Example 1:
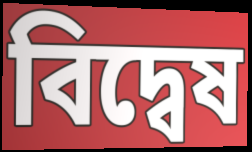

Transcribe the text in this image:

বিদ্বেষ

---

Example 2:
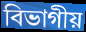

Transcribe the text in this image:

বিভাগীয়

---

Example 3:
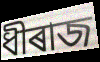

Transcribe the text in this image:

ধীৰাজ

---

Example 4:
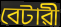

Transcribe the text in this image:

বেটাৱী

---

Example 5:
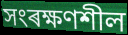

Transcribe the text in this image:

সংৰক্ষণশীল